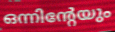
ഒന്നിന്റേയും